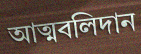
আত্মবলিদান